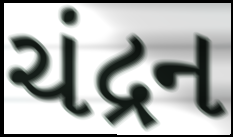
ચંદ્રન